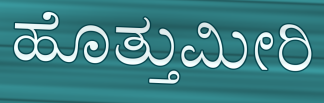
ಹೊತ್ತುಮೀರಿ